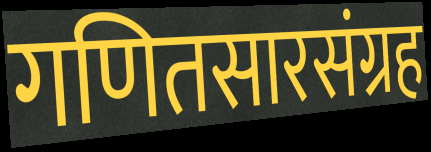
गणितसारसंग्रह